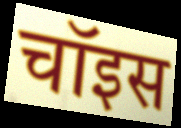
चॉइस